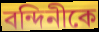
বন্দিনীকে